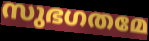
സുഭഗതമേ